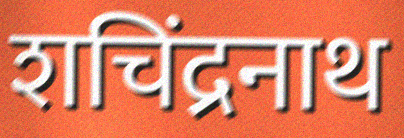
शचिंद्रनाथ